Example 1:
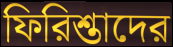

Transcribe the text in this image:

ফিরিশ্তাদের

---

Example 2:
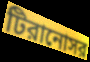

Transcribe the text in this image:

টিরানোসর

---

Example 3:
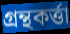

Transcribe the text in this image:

গ্রন্থকর্ত্তা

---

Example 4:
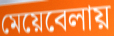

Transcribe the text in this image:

মেয়েবেলায়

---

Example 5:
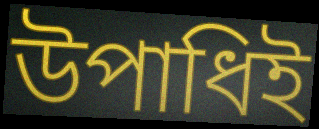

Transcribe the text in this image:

উপাধিই